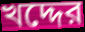
খদ্দের